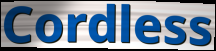
Cordless